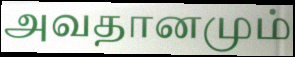
அவதானமும்